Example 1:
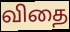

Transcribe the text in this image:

விதை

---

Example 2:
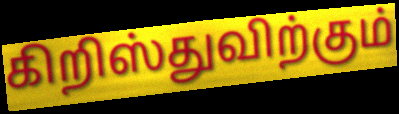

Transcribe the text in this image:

கிறிஸ்துவிற்கும்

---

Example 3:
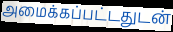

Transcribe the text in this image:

அமைக்கப்பட்டதுடன்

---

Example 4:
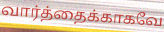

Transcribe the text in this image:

வார்த்தைக்காகவே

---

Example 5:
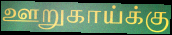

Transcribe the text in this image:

ஊறுகாய்க்கு